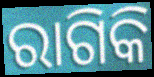
ରାଗିକି